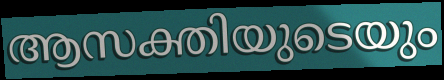
ആസക്തിയുടെയും